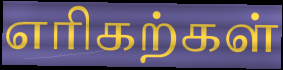
எரிகற்கள்